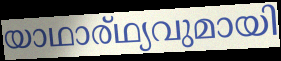
യാഥാര്ഥ്യവുമായി